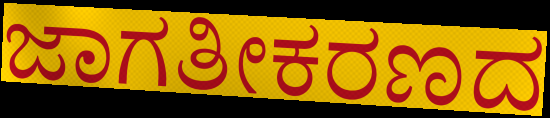
ಜಾಗತೀಕರಣದ